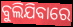
ବୁଲିଯିବାରେ